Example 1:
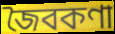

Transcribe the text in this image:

জৈবকণা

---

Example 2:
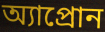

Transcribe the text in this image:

অ্যাপ্রোন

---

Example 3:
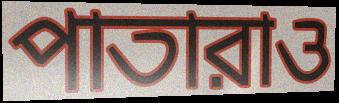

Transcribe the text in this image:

পাতারাও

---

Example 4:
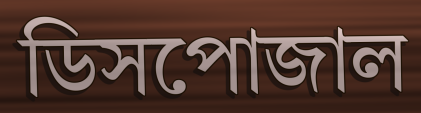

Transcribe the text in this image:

ডিসপোজাল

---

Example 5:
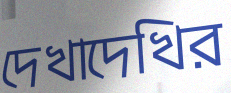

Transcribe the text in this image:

দেখাদেখির